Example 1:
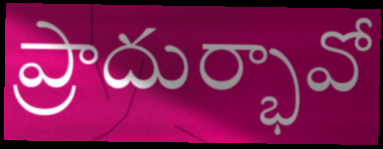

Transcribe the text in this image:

ప్రాదుర్భావో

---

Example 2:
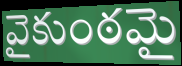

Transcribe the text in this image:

వైకుంఠమై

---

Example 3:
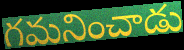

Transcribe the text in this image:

గమనించాడు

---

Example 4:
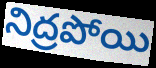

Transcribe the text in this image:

నిద్రపోయి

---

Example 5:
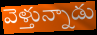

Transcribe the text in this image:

వెళ్తున్నాడు